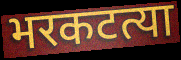
भरकटत्या